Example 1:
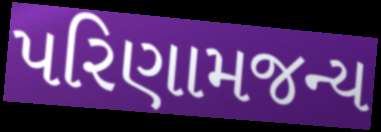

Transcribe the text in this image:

પરિણામજન્ય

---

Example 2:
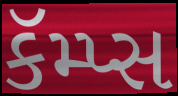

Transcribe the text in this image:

કૅમ્પ્સ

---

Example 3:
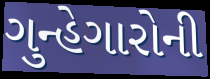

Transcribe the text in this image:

ગુન્હેગારોની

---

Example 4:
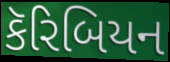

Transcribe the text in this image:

કૅરિબિયન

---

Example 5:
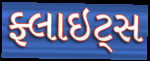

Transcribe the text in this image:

ફ્લાઇટ્સ